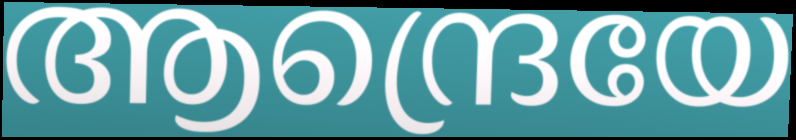
ആന്ദ്രെയേ